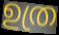
ഉത്ര